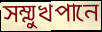
সম্মুখপানে